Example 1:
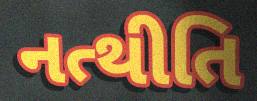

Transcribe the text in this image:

નત્થીતિ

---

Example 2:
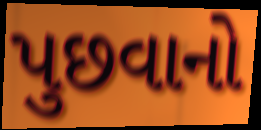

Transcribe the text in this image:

પુછવાનો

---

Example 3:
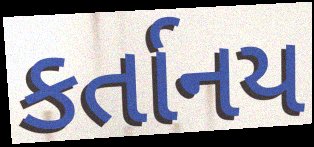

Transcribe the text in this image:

કર્તાનય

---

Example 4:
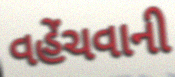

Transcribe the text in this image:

વહેંચવાની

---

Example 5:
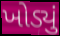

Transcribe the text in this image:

ખોડ્યું